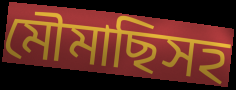
মৌমাছিসহ